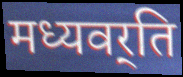
मध्यवर्ति